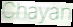
Chayan